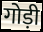
गोड़ी